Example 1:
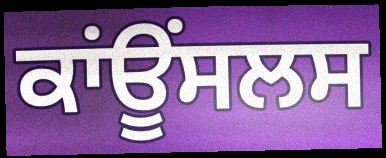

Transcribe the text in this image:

ਕਾਂਊਂਸਲਸ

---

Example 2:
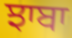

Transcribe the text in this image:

ਝਾਬਾ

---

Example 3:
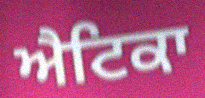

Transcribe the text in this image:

ਐਟਿਕਾ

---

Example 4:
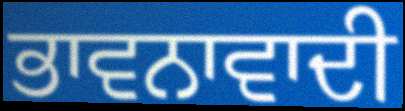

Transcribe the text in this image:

ਭਾਵਨਾਵਾਦੀ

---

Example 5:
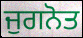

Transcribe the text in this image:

ਜੁਗਨੋਤ